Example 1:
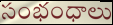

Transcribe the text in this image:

సంభంధాలు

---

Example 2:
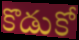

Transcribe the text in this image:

కొడుకో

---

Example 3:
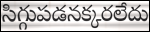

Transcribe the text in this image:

సిగ్గుపడనక్కరలేదు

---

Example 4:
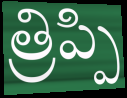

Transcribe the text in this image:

త్రిప్పి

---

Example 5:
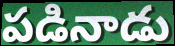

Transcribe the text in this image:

పడినాడు